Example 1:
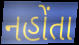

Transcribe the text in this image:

નહોંતા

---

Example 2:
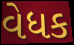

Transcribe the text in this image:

વેધક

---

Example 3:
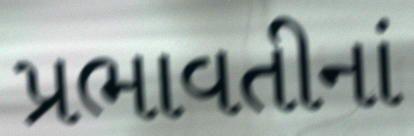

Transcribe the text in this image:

પ્રભાવતીનાં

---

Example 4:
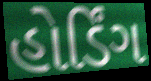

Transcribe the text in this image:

હોર્ડિંગ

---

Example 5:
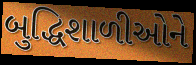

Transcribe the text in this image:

બુદ્ધિશાળીઓને